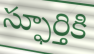
స్ఫూర్తికి